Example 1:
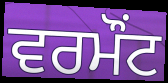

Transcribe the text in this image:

ਵਰਮੌਂਟ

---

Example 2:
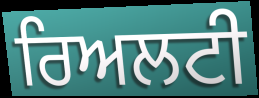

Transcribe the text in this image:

ਰਿਅਲਟੀ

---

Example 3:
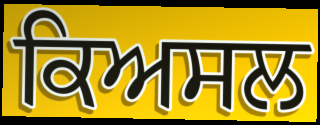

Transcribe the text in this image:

ਕਿਅਸਲ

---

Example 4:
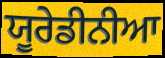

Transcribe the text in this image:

ਯੂਰੇਡੀਨੀਆ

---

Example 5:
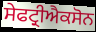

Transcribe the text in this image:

ਸੇਫਟ੍ਰੀਐਕਸੋਨ